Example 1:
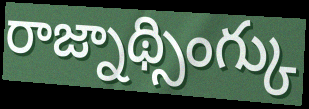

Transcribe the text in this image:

రాజ్నాథ్సింగ్కు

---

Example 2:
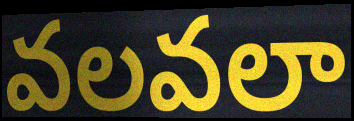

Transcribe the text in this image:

వలవలా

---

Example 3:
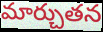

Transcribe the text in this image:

మార్చుతన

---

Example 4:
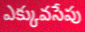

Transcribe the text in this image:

ఎక్కువసేపు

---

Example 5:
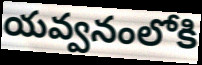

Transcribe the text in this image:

యవ్వనంలోకి